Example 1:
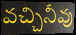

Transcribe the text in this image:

వచ్చినీవు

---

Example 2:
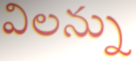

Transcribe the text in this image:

విలన్ను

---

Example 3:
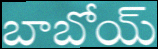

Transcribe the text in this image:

బాబోయ్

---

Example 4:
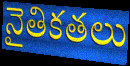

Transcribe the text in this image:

నైతికతలు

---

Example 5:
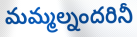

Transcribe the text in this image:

మమ్మల్నందరినీ